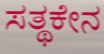
ಸತ್ಥಕೇನ